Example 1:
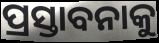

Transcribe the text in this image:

ପ୍ରସ୍ତାବନାକୁ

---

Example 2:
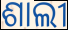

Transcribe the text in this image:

ଶାଲୀ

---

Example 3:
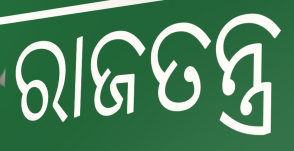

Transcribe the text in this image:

ରାଜତନ୍ତ୍ର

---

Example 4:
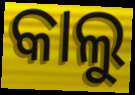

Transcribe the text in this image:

କାଲୁ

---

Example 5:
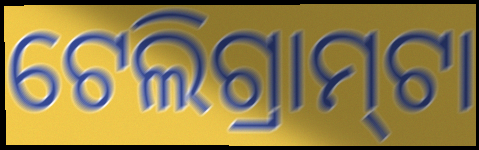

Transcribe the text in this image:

ଟେଲିଗ୍ରାମ୍‍ଟା